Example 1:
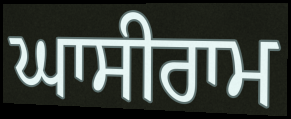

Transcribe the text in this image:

ਘਾਸੀਰਾਮ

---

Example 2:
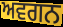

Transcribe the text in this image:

ਅਵਗਨ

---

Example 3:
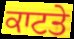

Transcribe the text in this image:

ਕਾਟਤੇ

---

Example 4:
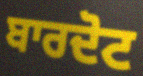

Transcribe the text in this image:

ਬਾਰਦੋਟ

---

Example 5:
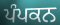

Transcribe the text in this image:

ਪੰਪਕਨ